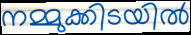
നമ്മുക്കിടയിൽ